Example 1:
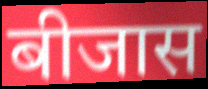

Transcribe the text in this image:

बीजास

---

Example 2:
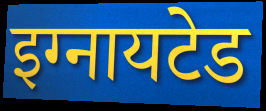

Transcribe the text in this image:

इग्नायटेड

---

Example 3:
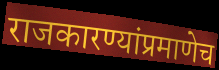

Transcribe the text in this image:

राजकारण्यांप्रमाणेच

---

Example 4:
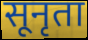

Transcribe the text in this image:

सूनृता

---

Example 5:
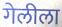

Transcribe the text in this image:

गेलीला